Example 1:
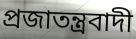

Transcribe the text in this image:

প্রজাতন্ত্রবাদী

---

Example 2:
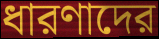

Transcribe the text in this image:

ধারণাদের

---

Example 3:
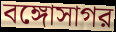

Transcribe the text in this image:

বঙ্গোসাগর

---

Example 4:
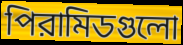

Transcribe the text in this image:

পিরামিডগুলো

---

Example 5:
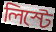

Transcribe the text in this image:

লিস্টে